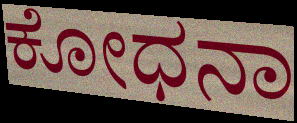
ಕೋಧನಾ